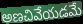
అణచివేయడమే